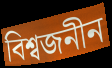
বিশ্বজনীন